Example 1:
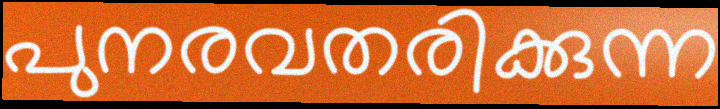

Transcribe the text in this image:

പുനരവതരിക്കുന്ന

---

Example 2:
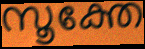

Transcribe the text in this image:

സൂക്തേ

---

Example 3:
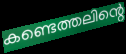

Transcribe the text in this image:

കണ്ടെത്തലിന്റെ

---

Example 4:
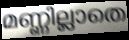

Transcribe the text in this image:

മണ്ണില്ലാതെ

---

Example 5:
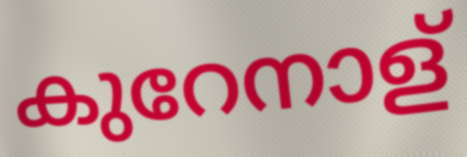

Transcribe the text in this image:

കുറേനാള്